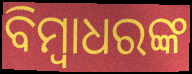
ବିମ୍ବାଧରଙ୍କ